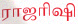
ராஜரிஷி